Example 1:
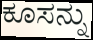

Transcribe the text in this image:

ಕೂಸನ್ನು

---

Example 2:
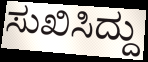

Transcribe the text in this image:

ಸುಖಿಸಿದ್ದು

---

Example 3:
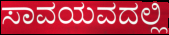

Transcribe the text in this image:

ಸಾವಯವದಲ್ಲಿ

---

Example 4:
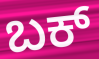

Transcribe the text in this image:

ಬಕ್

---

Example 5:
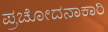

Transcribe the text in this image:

ಪ್ರಚೋದನಾಕಾರಿ